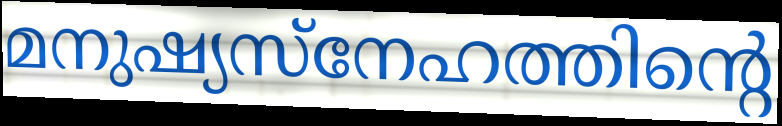
മനുഷ്യസ്നേഹത്തിന്റെ